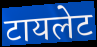
टायलेट